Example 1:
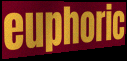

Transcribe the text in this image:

euphoric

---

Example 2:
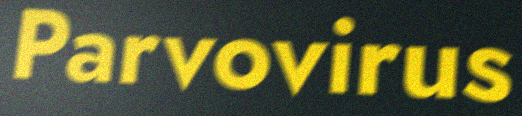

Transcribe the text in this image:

Parvovirus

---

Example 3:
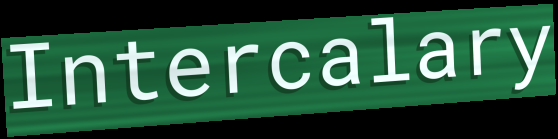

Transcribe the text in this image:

Intercalary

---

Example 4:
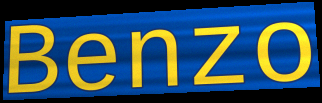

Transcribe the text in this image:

Benzo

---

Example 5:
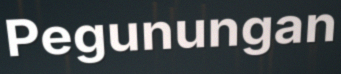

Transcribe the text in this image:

Pegunungan